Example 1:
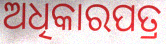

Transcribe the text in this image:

ଅଧିକାରପତ୍ର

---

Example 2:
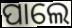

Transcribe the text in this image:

ପାଲେ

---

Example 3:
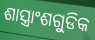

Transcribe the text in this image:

ଶାସ୍ତ୍ରାଂଶଗୁଡିକ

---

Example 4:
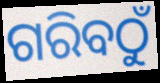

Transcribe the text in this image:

ଗରିବଠୁଁ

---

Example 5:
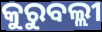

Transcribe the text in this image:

କୁରୁବଲ୍ଲୀ